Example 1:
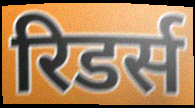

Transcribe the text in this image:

रिडर्स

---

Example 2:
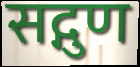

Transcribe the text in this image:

सद्गुण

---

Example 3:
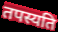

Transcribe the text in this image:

तपस्यति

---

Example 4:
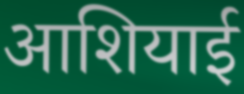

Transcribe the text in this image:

आशियाई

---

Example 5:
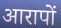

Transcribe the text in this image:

आरापों